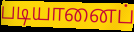
படியானைப்